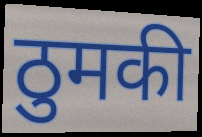
ठुमकी